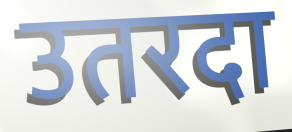
उतरदा